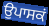
ਉਪਾਸਕਂ